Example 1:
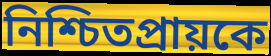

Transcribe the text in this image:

নিশ্চিতপ্রায়কে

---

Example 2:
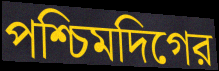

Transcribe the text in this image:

পশ্চিমদিগের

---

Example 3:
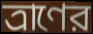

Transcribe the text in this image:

ত্রাণের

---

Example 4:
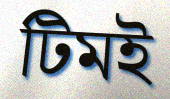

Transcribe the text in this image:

টিমই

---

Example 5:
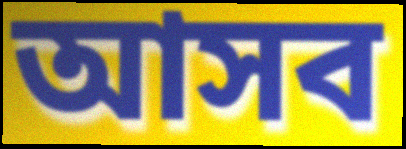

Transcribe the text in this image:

আসব